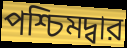
পশ্চিমদ্বার